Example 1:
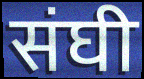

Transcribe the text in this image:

संघी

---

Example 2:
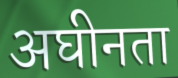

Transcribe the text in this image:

अघीनता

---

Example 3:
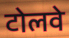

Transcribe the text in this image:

टोलवे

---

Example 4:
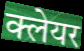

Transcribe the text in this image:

क्‍लेयर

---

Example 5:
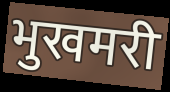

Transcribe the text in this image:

भुखमरी